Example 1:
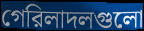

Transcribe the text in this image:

গেরিলাদলগুলো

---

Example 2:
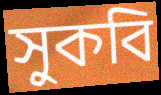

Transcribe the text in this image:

সুকবি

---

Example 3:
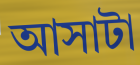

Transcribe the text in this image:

আসাটা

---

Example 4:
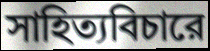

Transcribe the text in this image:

সাহিত্যবিচারে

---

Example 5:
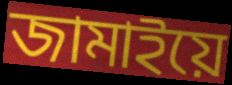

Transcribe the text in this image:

জামাইয়ে